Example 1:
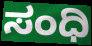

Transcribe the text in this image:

ಸಂಧಿ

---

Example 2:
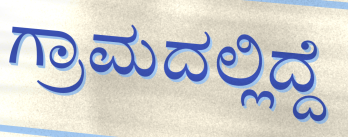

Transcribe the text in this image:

ಗ್ರಾಮದಲ್ಲಿದ್ದೆ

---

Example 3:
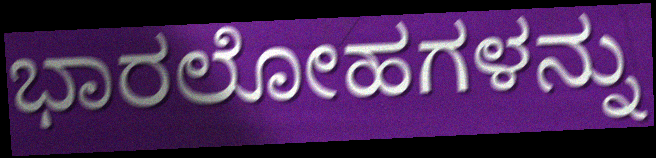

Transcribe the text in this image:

ಭಾರಲೋಹಗಳನ್ನು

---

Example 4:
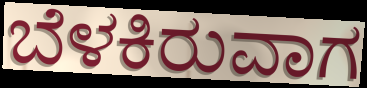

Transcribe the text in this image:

ಬೆಳಕಿರುವಾಗ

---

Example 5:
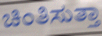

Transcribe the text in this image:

ಚಿಂತಿಸುತ್ತಾ